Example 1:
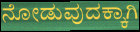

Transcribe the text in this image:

ನೋಡುವುದಕ್ಕಾಗಿ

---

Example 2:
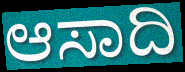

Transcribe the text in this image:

ಆಸಾದಿ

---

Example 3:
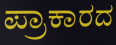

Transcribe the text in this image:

ಪ್ರಾಕಾರದ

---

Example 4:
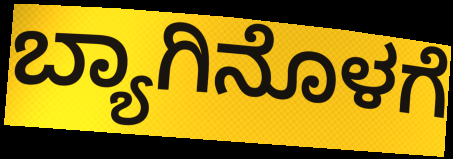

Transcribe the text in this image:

ಬ್ಯಾಗಿನೊಳಗೆ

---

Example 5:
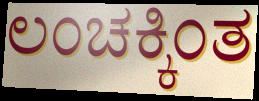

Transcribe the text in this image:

ಲಂಚಕ್ಕಿಂತ